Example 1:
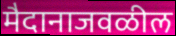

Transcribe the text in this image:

मैदानाजवळील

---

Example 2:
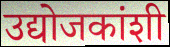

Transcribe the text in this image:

उद्योजकांशी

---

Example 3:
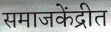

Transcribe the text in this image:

समाजकेंद्रीत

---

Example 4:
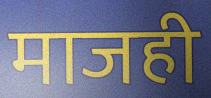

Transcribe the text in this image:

माजही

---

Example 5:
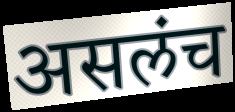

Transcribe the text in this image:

असलंच